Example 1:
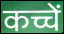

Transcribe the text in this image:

कच्चें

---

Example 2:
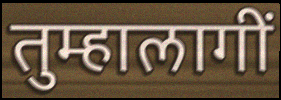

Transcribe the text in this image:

तुम्हालागीं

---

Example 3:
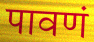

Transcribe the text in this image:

पावणं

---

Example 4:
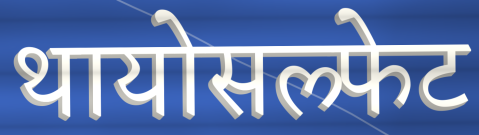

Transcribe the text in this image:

थायोसल्फेट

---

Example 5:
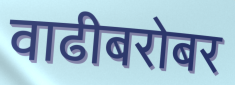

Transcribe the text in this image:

वाढीबरोबर